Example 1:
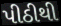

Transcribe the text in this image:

પીઠીથી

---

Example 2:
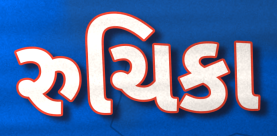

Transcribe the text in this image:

રુચિકા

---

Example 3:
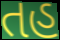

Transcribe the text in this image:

તહ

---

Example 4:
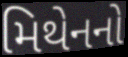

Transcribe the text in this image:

મિથેનનો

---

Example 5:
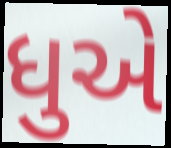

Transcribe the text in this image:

ધુએ